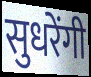
सुधरेंगी